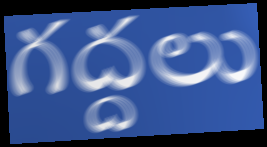
గద్దలు